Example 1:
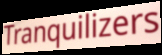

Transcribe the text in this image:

Tranquilizers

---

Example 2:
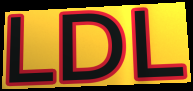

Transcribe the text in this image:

LDL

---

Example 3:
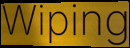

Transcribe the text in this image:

Wiping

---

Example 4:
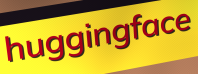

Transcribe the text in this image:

huggingface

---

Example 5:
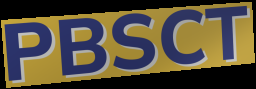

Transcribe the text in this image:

PBSCT